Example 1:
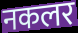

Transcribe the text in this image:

नकलर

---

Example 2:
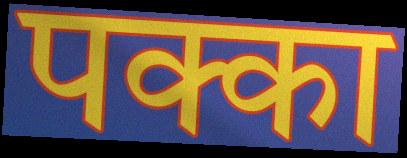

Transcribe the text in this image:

पक्का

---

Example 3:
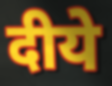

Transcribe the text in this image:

दीये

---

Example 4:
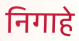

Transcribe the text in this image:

निगाहे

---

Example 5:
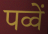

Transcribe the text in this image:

पव्वें